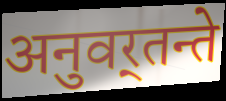
अनुवर्तन्ते